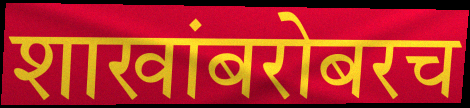
शाखांबरोबरच